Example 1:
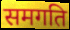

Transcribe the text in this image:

समगति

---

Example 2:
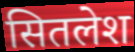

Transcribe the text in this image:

सितलेश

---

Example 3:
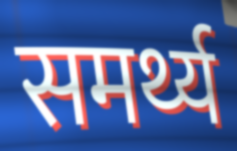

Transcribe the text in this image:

समर्थ्य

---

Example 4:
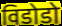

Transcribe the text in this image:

विडोडो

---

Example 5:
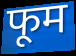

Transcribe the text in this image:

फूम